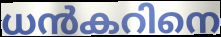
ധൻകറിനെ